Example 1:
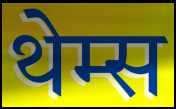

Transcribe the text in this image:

थेम्स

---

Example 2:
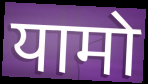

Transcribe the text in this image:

यामो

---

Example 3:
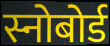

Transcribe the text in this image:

स्नोबोर्ड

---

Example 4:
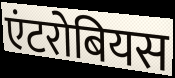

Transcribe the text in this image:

एंटरोबियस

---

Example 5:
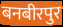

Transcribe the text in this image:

बनबीरपुर